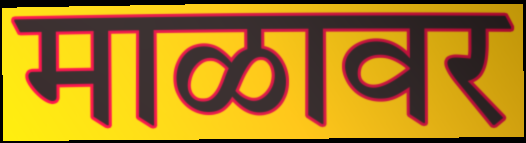
माळावर